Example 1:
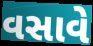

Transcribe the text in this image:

વસાવે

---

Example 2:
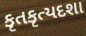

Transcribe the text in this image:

કૃતકૃત્યદશા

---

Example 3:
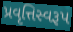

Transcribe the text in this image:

પ્રવૃત્તિસ્વરૂપ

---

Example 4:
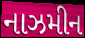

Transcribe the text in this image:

નાઝમીન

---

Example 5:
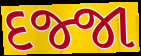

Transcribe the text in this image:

દજ્જા